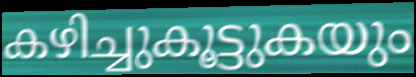
കഴിച്ചുകൂട്ടുകയും